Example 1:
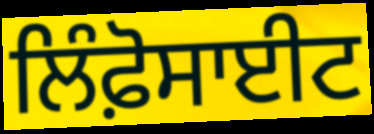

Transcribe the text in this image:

ਲਿੰਫ਼ੋਸਾਈਟ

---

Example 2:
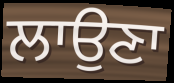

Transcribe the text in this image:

ਲਾਉਣਾ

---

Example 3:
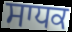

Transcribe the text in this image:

ਸਾਧਕ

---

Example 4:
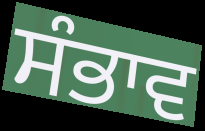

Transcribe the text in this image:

ਸੰਭਾਵ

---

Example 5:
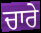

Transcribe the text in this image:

ਚਾਰੇ